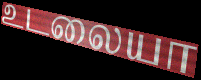
உடலையா